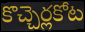
కొచ్చెర్లకోట